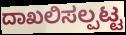
ದಾಖಲಿಸಲ್ಪಟ್ಟ